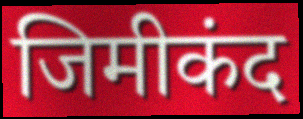
जिमीकंद